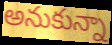
అనుకున్నా